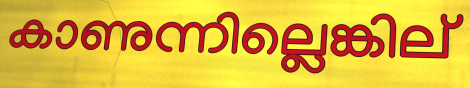
കാണുന്നില്ലെങ്കില്